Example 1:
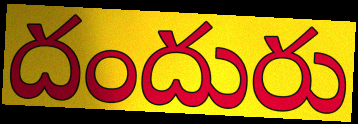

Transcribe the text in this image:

దందురు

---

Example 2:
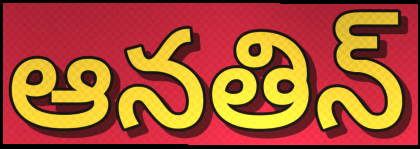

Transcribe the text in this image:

ఆనతిన్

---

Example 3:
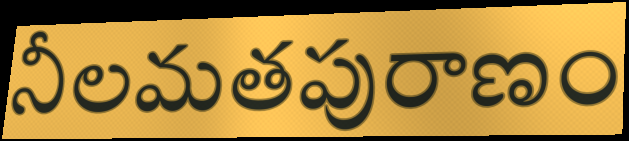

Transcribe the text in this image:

నీలమతపురాణం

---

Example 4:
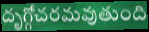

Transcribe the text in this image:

దృగ్గోచరమవుతుంది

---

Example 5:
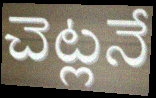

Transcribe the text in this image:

చెట్లనే